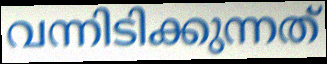
വന്നിടിക്കുന്നത്